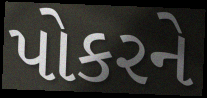
પોકરને